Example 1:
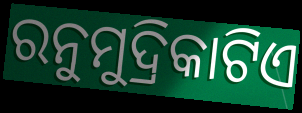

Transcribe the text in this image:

ରନୁମୁଦ୍ରିକାଟିଏ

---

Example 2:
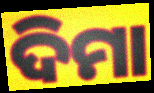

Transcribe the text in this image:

ଦିମା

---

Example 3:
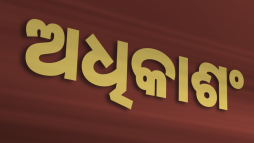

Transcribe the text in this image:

ଅଧିକାଶଂ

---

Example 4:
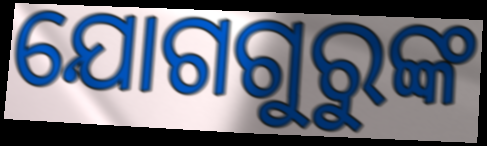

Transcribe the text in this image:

ଯୋଗଗୁରୁଙ୍କ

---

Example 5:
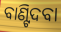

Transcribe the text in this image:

ବାଣ୍ଟିଦବା